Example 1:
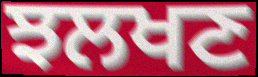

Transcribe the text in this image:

ਝਲਖਣ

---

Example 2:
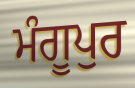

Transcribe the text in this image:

ਮੰਗੂਪੁਰ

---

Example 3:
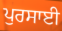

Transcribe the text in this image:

ਪੁਰਸਾਈ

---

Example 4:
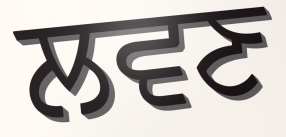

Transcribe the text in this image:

ਲਵਣ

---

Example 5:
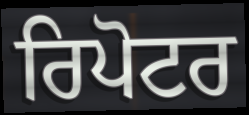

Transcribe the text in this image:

ਰਿਪੋਟਰ